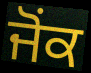
ਜੋਂਕ